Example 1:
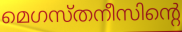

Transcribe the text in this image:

മെഗസ്തനീസിന്റെ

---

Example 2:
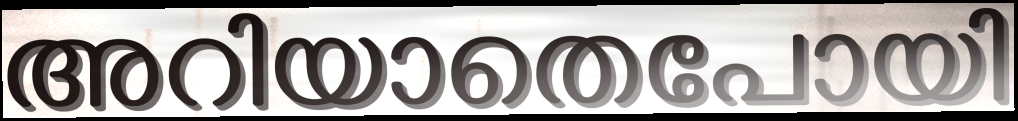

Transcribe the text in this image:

അറിയാതെപോയി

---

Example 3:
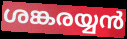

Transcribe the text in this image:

ശങ്കരയ്യൻ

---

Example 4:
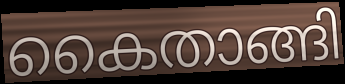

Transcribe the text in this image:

കൈതാങ്ങി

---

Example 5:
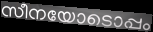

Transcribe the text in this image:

സീനയോടൊപ്പം